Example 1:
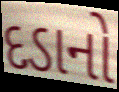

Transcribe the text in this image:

દડાનો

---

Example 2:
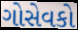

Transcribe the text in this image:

ગોસેવકો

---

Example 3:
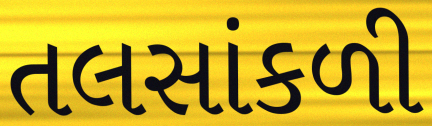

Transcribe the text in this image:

તલસાંકળી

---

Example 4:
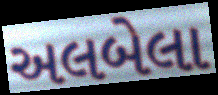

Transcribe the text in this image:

અલબેલા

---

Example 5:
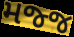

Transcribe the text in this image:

મજ્જ